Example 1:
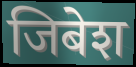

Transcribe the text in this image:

जिबेश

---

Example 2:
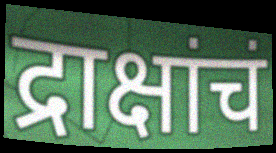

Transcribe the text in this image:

द्राक्षांचं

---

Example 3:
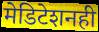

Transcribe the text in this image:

मेडिटेशनही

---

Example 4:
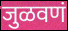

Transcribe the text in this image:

जुळवणं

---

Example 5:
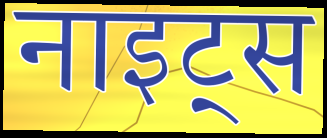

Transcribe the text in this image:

नाइट्‌स